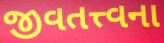
જીવતત્ત્વના